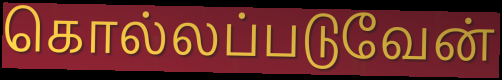
கொல்லப்படுவேன்